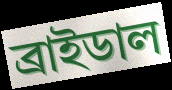
ব্রাইডাল